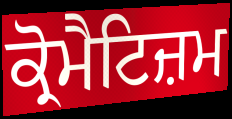
ਕ੍ਰੋਮੈਟਿਜ਼ਮ